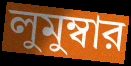
লুমুম্বার